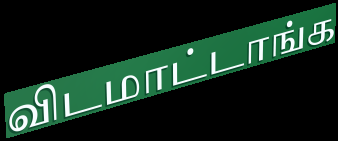
விடமாட்டாங்க